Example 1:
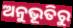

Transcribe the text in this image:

ଅନୁଭୂତିରୁ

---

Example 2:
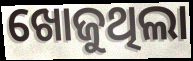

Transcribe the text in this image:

ଖୋଜୁଥିଲା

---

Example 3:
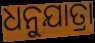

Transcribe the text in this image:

ଧନୁଯାତ୍ରା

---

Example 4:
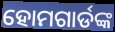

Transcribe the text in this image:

ହୋମଗାର୍ଡଙ୍କ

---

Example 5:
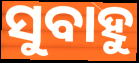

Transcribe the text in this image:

ସୁବାହୁ